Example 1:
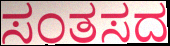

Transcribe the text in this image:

ಸಂತಸದ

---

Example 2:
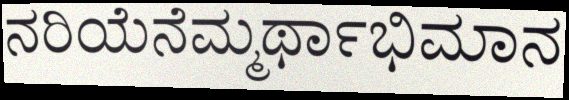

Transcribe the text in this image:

ನರಿಯೆನೆಮ್ಮರ್ಥಾಭಿಮಾನ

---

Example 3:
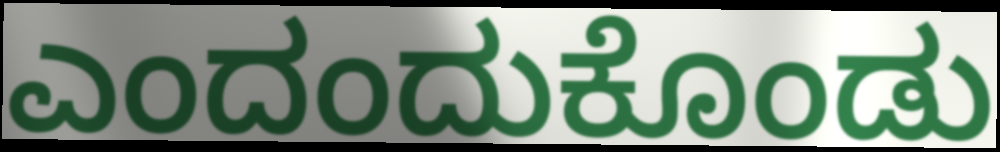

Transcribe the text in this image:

ಎಂದಂದುಕೊಂಡು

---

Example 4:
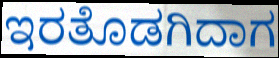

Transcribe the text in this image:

ಇರತೊಡಗಿದಾಗ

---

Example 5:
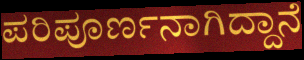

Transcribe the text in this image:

ಪರಿಪೂರ್ಣನಾಗಿದ್ದಾನೆ